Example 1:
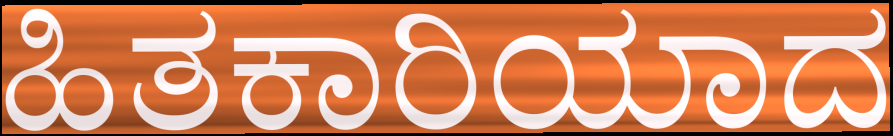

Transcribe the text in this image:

ಹಿತಕಾರಿಯಾದ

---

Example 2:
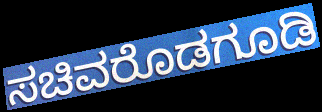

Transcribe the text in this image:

ಸಚಿವರೊಡಗೂಡಿ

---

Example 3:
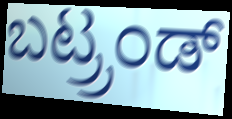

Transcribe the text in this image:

ಬಟ್ರ್ರಂಡ್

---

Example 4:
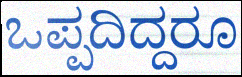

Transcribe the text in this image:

ಒಪ್ಪದಿದ್ದರೂ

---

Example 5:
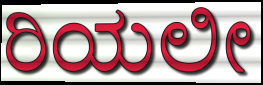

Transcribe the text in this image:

ರಿಯಲೀ